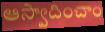
ఆస్వాదించాం